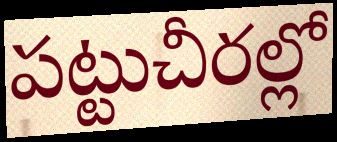
పట్టుచీరల్లో